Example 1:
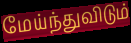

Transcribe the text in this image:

மேய்ந்துவிடும்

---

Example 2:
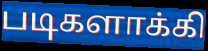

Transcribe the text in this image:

படிகளாக்கி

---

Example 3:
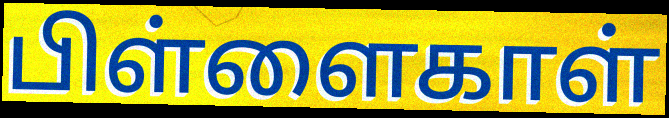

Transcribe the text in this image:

பிள்ளைகாள்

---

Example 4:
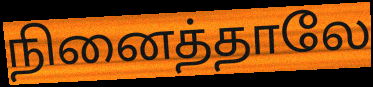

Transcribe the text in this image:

நினைத்தாலே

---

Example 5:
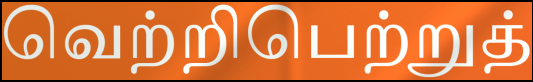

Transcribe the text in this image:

வெற்றிபெற்றுத்